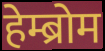
हेम्ब्रोम